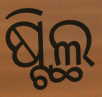
ଷ୍ଟିଲ୍ଥ